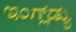
ಇಂಗ್ಲ್‌ಡ್ಯು